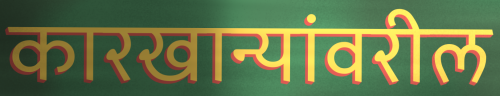
कारखान्यांवरील